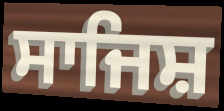
ਸਾਜਿਸ਼